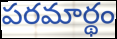
పరమార్థం